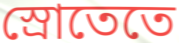
স্রোতেতে